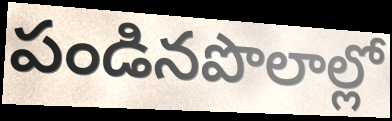
పండినపొలాల్లో